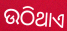
ଉଠିଥାଏ